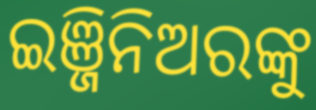
ଇଞ୍ଜିନିଅରଙ୍କୁ